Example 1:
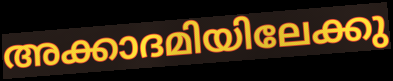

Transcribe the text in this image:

അക്കാദമിയിലേക്കു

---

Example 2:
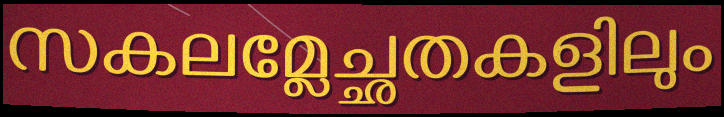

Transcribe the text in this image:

സകലമ്ലേച്ഛതകളിലും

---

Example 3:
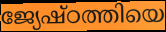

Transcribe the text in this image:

ജ്യേഷ്ഠത്തിയെ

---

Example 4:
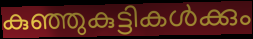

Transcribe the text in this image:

കുഞ്ഞുകുട്ടികൾക്കും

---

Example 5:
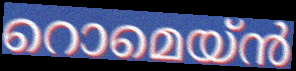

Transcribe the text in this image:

റൊമെയ്ൻ